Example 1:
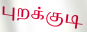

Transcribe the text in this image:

புறக்குடி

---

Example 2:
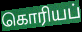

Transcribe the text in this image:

கொரியப்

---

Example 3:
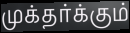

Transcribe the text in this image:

முக்தர்க்கும்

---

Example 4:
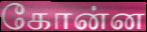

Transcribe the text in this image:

கோன்ன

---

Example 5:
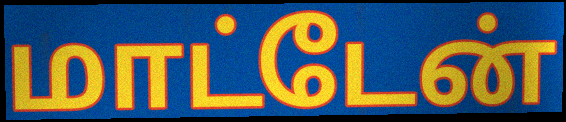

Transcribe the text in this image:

மாட்டேன்